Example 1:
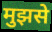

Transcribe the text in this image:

मुझसे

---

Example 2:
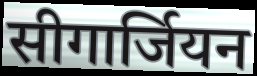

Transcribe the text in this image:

सीगार्जियन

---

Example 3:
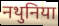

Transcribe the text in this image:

नथुनिया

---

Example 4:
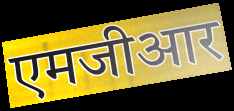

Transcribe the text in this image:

एमजीआर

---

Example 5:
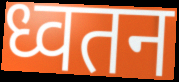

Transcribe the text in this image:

ध्वतन